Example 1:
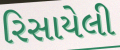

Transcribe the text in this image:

રિસાયેલી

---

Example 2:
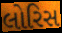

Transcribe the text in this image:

લોરિસ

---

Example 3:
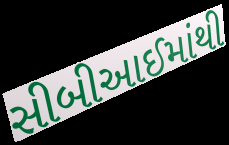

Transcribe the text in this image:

સીબીઆઈમાંથી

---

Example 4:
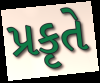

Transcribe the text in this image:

પ્રકૃતે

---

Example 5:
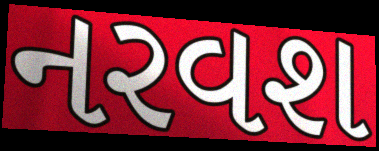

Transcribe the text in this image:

નરવશ